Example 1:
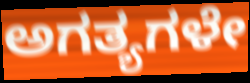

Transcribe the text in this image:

ಅಗತ್ಯಗಳೇ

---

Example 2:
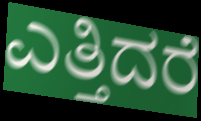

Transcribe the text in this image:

ಎತ್ತಿದರೆ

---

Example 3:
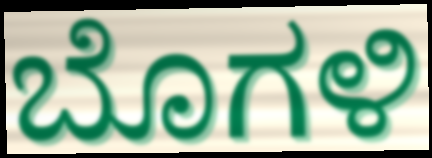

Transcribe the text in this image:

ಬೊಗಳಿ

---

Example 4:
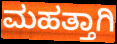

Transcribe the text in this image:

ಮಹತ್ತಾಗಿ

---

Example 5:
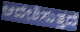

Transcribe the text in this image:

ಆದೇಶಿಸುತ್ತದೆ